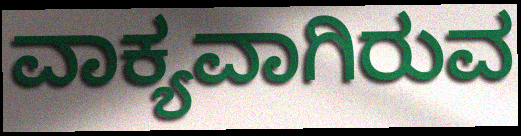
ವಾಕ್ಯವಾಗಿರುವ